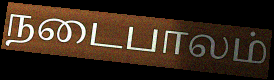
நடைபாலம்